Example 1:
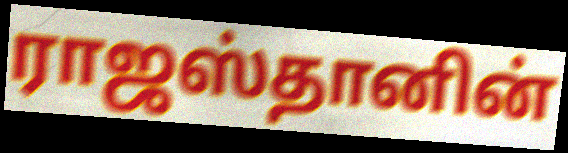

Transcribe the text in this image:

ராஜஸ்தானின்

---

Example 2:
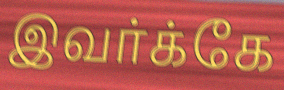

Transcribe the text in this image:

இவர்க்கே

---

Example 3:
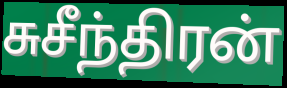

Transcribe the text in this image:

சுசீந்திரன்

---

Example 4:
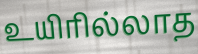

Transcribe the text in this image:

உயிரில்லாத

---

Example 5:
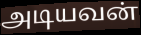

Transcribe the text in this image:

அடியவன்